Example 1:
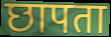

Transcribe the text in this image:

छापता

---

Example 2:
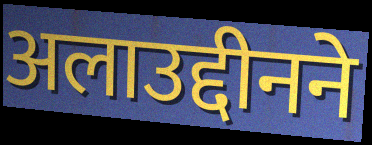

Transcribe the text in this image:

अलाउद्दीनने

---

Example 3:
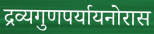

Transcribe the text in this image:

द्रव्यगुणपर्यायनोरास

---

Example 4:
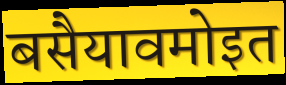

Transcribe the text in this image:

बसैयावमोइत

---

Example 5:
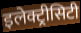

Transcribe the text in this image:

इलेक्ट्रीसिटी